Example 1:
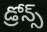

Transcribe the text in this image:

డ్రోన్స్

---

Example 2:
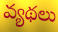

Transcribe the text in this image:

వ్యథలు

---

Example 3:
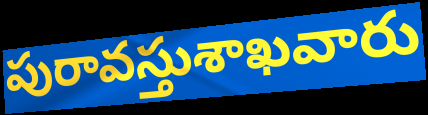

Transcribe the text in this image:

పురావస్తుశాఖవారు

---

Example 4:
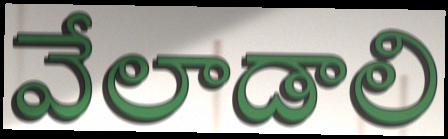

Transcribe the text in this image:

వేలాడాలి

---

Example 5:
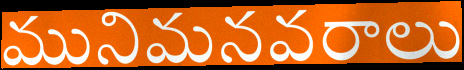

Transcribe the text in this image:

మునిమనవరాలు